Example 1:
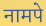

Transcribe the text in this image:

नामपे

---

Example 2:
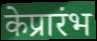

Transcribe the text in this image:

केप्रारंभ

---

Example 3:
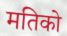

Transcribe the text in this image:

मतिको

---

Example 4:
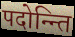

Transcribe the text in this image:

पदोन्न्ति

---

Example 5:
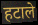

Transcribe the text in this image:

हटाले